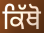
ਕਿੱਥੋ